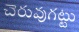
చెరువుగట్టు